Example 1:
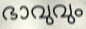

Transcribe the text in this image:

ഭാവുവും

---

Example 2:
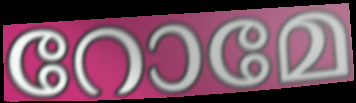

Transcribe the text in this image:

റോമേ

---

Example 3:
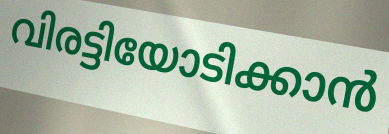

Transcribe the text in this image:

വിരട്ടിയോടിക്കാൻ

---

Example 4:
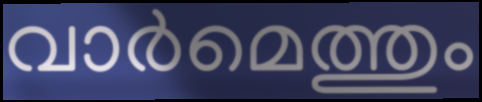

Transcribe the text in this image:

വാർമെത്തും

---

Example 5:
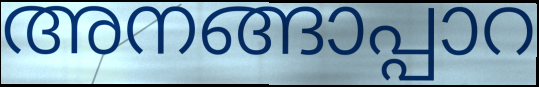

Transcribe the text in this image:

അനങ്ങാപ്പാറ